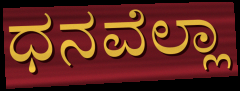
ಧನವೆಲ್ಲಾ